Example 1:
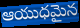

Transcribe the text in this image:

ఆయుధమైన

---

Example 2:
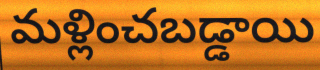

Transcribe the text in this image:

మళ్లించబడ్డాయి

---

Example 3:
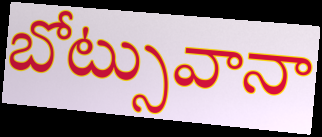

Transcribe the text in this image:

బోట్సువానా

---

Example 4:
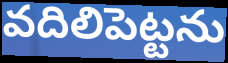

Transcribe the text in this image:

వదిలిపెట్టను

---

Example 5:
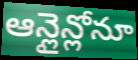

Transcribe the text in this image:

ఆన్లైన్లోనూ